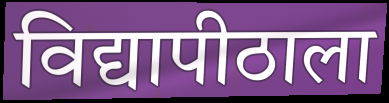
विद्यापीठाला